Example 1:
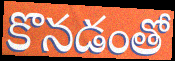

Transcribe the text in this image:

కొనడంతో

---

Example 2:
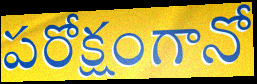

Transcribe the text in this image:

పరోక్షంగానో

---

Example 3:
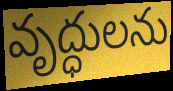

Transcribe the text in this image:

వృద్ధులను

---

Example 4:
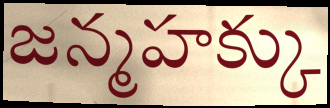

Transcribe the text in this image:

జన్మహక్కు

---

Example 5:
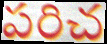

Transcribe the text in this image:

పరిచ